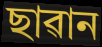
ছাৱান